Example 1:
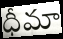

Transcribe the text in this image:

ధీమా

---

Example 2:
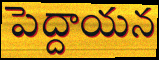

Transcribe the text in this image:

పెద్దాయన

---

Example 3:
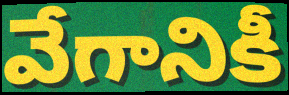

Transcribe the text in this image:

వేగానికీ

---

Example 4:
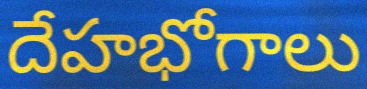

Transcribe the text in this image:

దేహభోగాలు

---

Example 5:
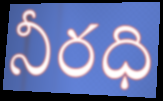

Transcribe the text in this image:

నీరధి